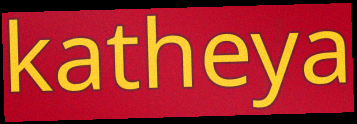
katheya